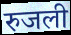
रुजली